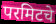
परमिटचे